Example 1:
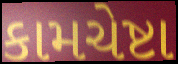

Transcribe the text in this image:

કામચેષ્ટા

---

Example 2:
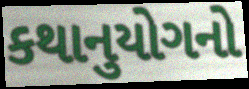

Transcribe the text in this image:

કથાનુયોગનો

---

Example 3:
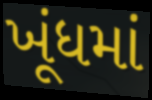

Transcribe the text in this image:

ખૂંધમાં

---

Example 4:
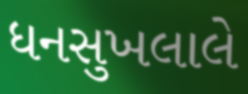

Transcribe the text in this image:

ધનસુખલાલે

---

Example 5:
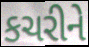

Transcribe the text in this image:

કચરીને